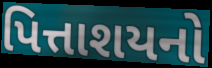
પિત્તાશયનો